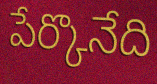
పేర్కొనేది